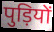
पुड़ियों